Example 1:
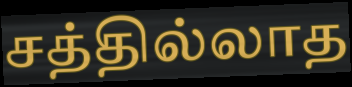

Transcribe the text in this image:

சத்தில்லாத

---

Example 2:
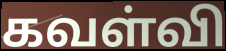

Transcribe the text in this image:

கவள்வி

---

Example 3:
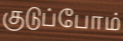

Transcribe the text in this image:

குடுப்போம்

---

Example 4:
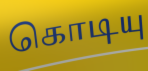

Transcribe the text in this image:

கொடியு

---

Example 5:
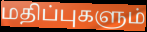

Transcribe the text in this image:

மதிப்புகளும்